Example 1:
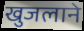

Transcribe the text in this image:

खुजलाने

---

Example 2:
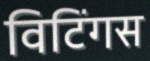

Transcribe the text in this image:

विटिंगस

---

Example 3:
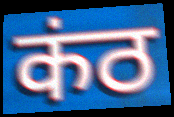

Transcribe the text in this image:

कंठ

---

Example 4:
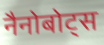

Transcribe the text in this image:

नैनोबोट्स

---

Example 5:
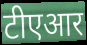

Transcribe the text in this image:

टीएआर